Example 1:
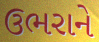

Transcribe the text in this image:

ઉભરાને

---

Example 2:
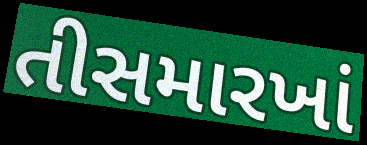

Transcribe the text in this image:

તીસમારખાં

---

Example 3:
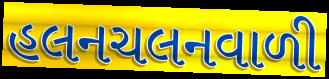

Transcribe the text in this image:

હલનચલનવાળી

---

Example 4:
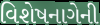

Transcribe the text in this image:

વિશેષનાગેની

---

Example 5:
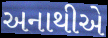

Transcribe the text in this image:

અનાથીએ